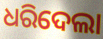
ଧରିଦେଲା